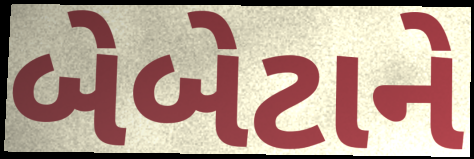
બેબેટાને